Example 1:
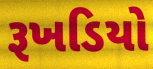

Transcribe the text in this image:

રૂખડિયો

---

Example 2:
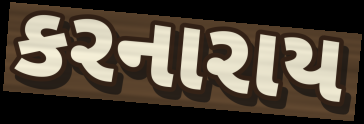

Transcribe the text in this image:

કરનારાય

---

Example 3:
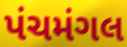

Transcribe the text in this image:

પંચમંગલ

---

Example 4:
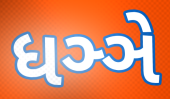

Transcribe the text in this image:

ધઞ્ઞે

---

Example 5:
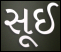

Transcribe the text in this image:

સૂઈ